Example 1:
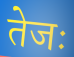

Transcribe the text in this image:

तेजः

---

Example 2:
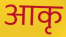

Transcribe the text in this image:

आकृ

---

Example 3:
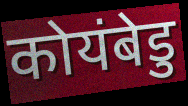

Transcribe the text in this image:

कोयंबेडु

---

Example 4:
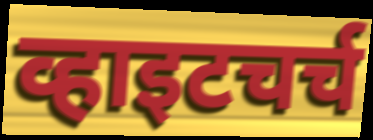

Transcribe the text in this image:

व्हाइटचर्च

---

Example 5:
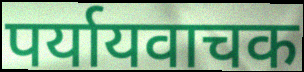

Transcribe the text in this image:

पर्यायवाचक